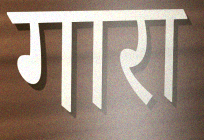
गारा